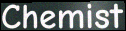
Chemist